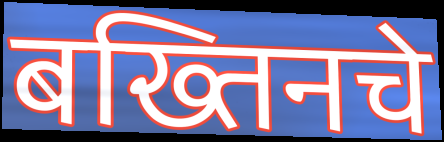
बख्तिनचे